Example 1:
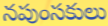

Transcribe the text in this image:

నపుంసకులు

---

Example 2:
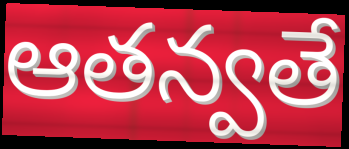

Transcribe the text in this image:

ఆతన్వతే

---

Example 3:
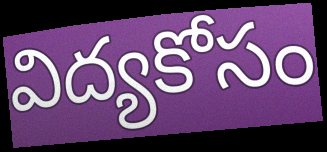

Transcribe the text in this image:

విద్యకోసం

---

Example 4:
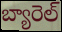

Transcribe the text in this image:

బ్యారెల్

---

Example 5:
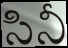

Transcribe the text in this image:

సినీ